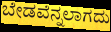
ಬೇಡವೆನ್ನಲಾಗದು